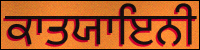
ਕਾਤਯਾਇਨੀ